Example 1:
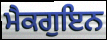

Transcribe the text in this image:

ਮੈਕਗੁਇਨ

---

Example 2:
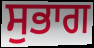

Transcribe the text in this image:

ਸੁਭਾਗ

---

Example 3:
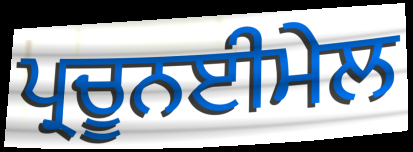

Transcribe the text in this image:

ਪ੍ਰਚੂਨਈਮੇਲ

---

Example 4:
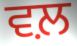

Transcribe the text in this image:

ਵਲ਼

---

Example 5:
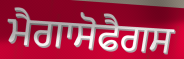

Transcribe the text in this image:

ਮੈਗਾਸੋਫੈਗਸ